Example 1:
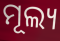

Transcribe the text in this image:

ମୂଲ୍ୟ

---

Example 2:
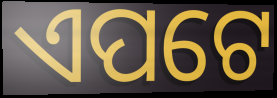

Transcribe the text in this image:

ଏପଟେ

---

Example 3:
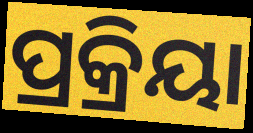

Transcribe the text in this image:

ପ୍ରକ୍ରିୟା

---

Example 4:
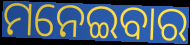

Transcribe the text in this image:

ମନେଇବାର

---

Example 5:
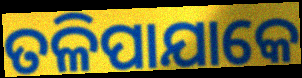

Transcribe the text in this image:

ତଳିପାଯାକେ